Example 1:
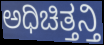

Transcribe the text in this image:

ಅಧಿಚಿತ್ತನ್ತಿ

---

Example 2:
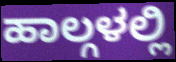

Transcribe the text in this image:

ಹಾಲ್ಗಳಲ್ಲಿ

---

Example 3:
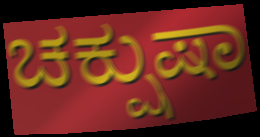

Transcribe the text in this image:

ಚಕ್ಷುಷಾ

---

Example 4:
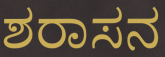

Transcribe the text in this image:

ಶರಾಸನ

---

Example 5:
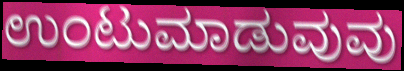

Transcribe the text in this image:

ಉಂಟುಮಾಡುವುವು